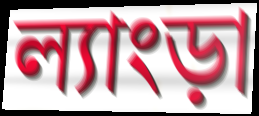
ল্যাংড়া